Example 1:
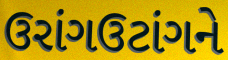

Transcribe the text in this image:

ઉરાંગઉટાંગને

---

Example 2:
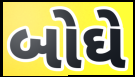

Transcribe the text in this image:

બોઘે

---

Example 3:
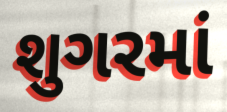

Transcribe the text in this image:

શુગરમાં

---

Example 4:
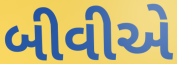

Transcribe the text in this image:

બીવીએ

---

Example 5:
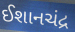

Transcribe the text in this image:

ઈશાનચંદ્ર